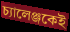
চ্যালেঞ্জকেই